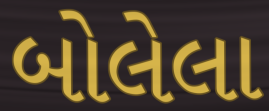
બોલેલા